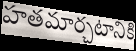
హతమార్చటానికి